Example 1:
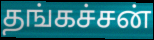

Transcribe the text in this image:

தங்கச்சன்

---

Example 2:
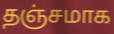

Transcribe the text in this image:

தஞ்சமாக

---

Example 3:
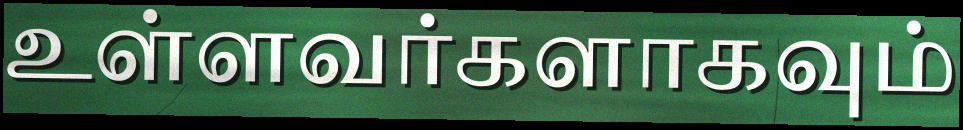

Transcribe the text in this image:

உள்ளவர்களாகவும்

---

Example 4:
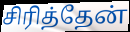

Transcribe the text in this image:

சிரித்தேன்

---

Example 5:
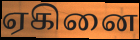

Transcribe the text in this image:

ஏகினை